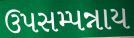
ઉપસમ્પન્નાય